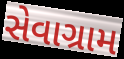
સેવાગ્રામ